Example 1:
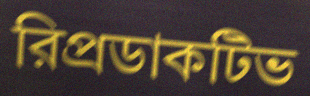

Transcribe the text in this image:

রিপ্রডাকটিভ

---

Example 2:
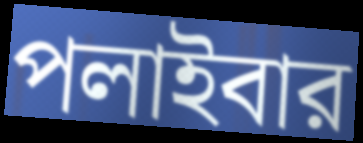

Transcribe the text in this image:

পলাইবার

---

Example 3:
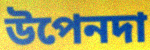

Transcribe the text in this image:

উপেনদা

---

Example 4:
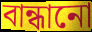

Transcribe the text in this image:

বান্ধানো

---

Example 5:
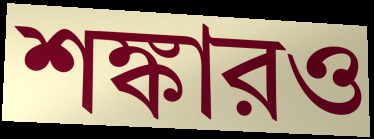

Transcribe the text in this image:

শঙ্কারও